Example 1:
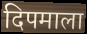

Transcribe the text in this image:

दिपमाला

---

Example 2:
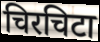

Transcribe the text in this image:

चिरचिटा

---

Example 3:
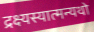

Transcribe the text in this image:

द्रक्ष्यस्यात्मन्यथो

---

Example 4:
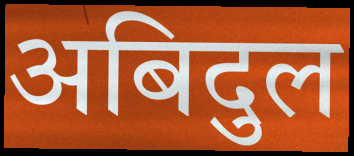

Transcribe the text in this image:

अबिदुल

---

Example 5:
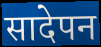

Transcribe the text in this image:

सादेपन